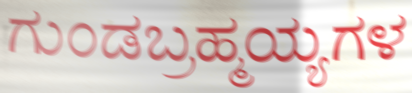
ಗುಂಡಬ್ರಹ್ಮಯ್ಯಗಳ